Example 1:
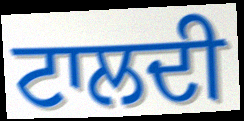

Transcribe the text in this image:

ਟਾਲਦੀ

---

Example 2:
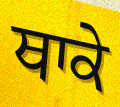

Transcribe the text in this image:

ਥਾਕੇ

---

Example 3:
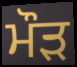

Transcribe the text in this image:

ਮੌਡ਼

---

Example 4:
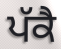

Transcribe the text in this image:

ਪੱਕੈ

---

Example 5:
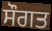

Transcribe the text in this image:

ਸੌਗਤ